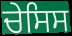
ਚੇਸਿਸ